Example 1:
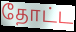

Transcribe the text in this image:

தோட்ட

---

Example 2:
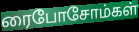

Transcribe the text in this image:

ரைபோசோம்கள்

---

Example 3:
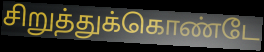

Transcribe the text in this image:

சிறுத்துக்கொண்டே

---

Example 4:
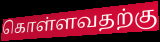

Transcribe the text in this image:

கொள்ளவதற்கு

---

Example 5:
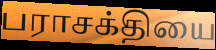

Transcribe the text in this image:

பராசக்தியை